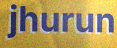
jhurun